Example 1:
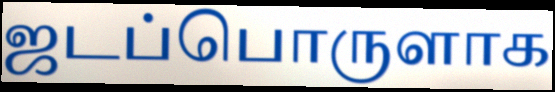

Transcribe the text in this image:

ஜடப்பொருளாக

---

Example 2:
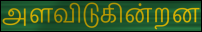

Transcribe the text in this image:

அளவிடுகின்றன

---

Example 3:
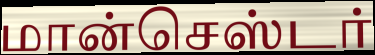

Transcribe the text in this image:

மான்செஸ்டர்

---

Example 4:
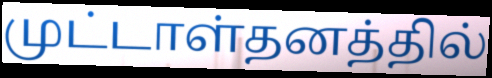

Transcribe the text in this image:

முட்டாள்தனத்தில்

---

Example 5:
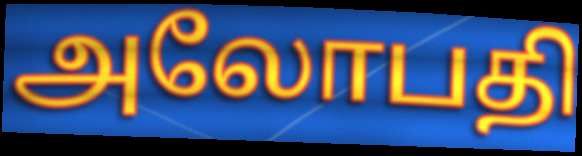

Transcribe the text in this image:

அலோபதி